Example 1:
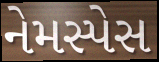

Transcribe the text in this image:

નેમસ્પેસ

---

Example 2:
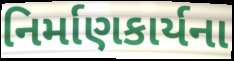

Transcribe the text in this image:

નિર્માણકાર્યના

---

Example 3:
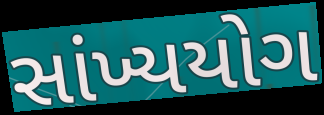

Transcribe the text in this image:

સાંખ્યયોગ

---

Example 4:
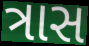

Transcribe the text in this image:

ત્રાસ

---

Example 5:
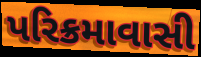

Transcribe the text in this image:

પરિક્રમાવાસી